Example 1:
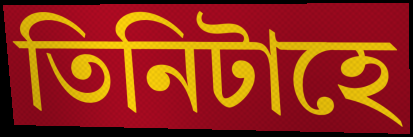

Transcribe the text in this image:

তিনিটাহে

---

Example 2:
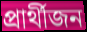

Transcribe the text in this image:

প্ৰাৰ্থীজন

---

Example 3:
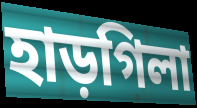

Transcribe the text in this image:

হাড়গিলা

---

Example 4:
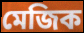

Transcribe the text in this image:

মেজিক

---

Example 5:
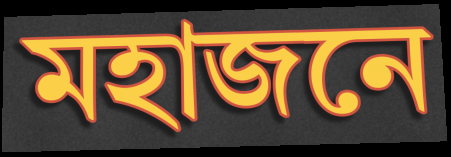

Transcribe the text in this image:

মহাজনে